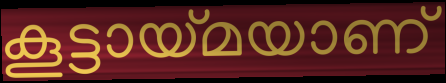
കൂട്ടായ്മയാണ്